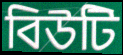
বিউটি